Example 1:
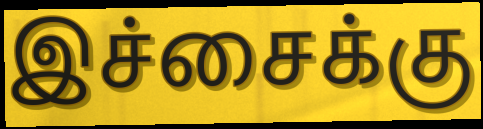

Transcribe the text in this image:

இச்சைக்கு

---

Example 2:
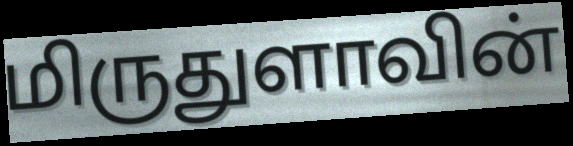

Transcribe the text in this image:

மிருதுளாவின்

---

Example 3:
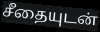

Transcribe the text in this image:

சீதையுடன்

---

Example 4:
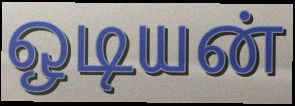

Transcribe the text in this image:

ஒடியன்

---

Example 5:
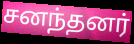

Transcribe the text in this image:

சனந்தனர்